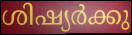
ശിഷ്യർക്കു